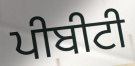
ਪੀਬੀਟੀ